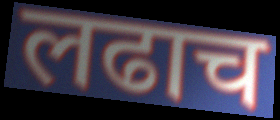
लढाच